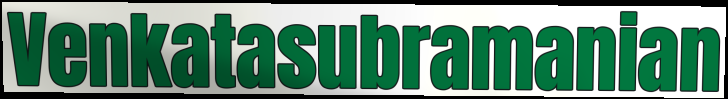
Venkatasubramanian